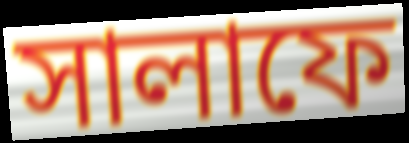
সালাফে